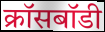
क्रॉसबॉडी